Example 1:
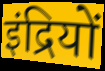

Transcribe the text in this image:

इंद्रियों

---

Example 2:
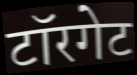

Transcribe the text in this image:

टॉरगेट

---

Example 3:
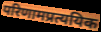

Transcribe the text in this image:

परिणामप्रत्ययिक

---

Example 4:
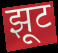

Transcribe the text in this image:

झूट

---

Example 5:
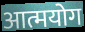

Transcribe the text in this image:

आत्मयोग